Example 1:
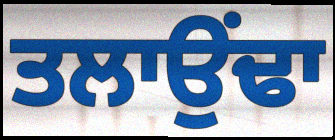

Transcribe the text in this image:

ਤਲਾਉਂਢਾ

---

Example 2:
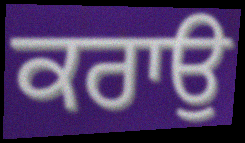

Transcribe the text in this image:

ਕਰਾਉ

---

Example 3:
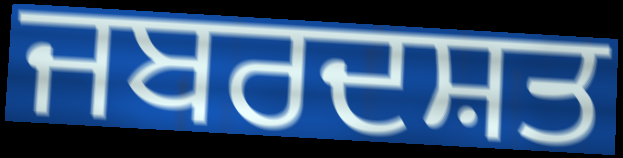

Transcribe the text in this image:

ਜਬਰਦਸ਼ਤ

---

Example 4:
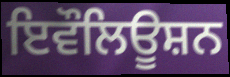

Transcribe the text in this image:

ਇਵੌਲਿਊਸ਼ਨ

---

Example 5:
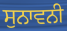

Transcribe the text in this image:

ਸੁਨਾਵਨੀ